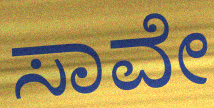
ಸಾವೇ